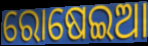
ରୋଷେଇଆ